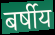
बर्षीय